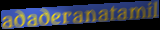
adaderanatamil